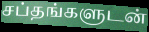
சப்தங்களுடன்